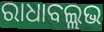
ରାଧାବଲ୍ଲଭ